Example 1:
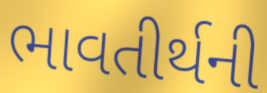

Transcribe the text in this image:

ભાવતીર્થની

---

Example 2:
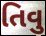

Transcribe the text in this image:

તિવુ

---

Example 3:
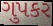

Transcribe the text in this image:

ગુપકર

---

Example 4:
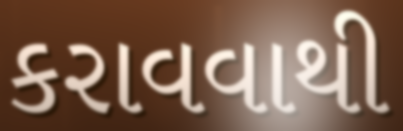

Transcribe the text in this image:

કરાવવાથી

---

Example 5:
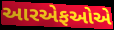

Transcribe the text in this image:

આરએફઓએ